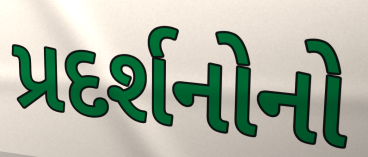
પ્રદર્શનોનો